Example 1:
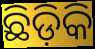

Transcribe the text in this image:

ଛିଡ଼ିକି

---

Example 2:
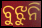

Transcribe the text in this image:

ବୁଝୁନି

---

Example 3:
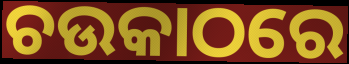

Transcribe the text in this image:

ଚଉକାଠରେ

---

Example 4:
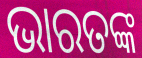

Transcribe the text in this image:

ଭାରତଙ୍କ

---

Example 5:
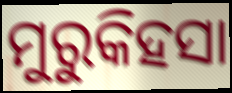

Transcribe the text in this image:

ମୁରୁକିହସା